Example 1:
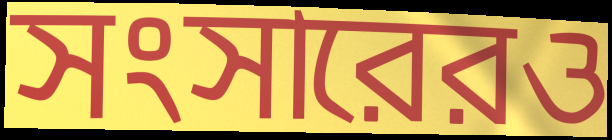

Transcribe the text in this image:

সংসারেরও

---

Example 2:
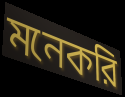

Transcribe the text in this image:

মনেকরি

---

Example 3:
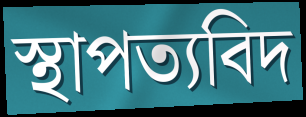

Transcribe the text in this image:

স্থাপত্যবিদ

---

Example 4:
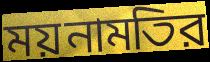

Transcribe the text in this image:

ময়নামতির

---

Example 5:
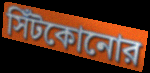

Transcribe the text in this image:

সিঁটকোনোর